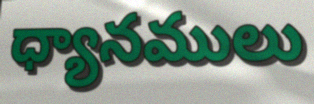
ధ్యానములు